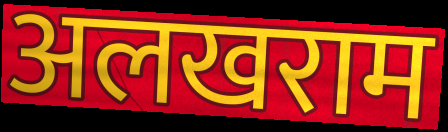
अलखराम